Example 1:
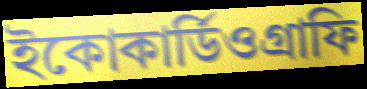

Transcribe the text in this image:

ইকোকার্ডিওগ্রাফি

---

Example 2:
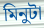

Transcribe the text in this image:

মিনুটা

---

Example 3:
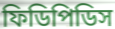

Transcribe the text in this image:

ফিডিপিডিস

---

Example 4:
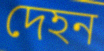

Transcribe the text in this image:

দেহন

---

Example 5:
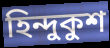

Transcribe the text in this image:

হিন্দুকুশ